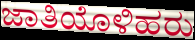
ಜಾತಿಯೊಳಿಹರು